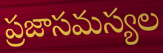
ప్రజాసమస్యల